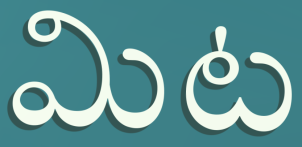
మిట